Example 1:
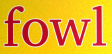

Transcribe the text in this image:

fowl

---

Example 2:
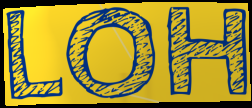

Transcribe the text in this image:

LOH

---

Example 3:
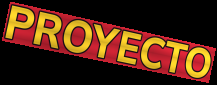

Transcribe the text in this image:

PROYECTO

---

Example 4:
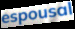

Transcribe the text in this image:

espousal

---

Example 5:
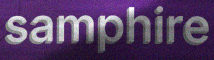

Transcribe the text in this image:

samphire